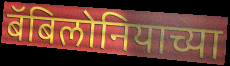
बॅबिलोनियाच्या